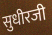
सुधीरजी